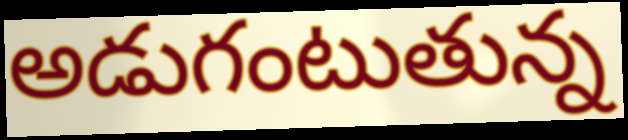
అడుగంటుతున్న